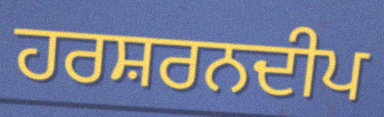
ਹਰਸ਼ਰਨਦੀਪ